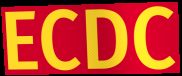
ECDC